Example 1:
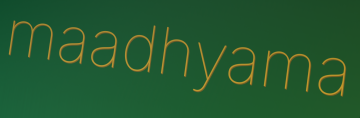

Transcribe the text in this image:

maadhyama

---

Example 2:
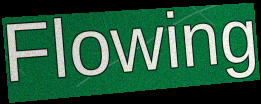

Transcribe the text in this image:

Flowing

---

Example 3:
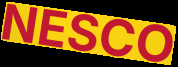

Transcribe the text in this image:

NESCO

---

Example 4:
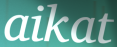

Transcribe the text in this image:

aikat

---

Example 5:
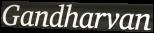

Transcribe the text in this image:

Gandharvan